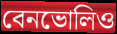
বেনভোলিও